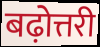
बढ़ोत्तरी